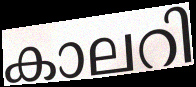
കാലറി